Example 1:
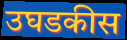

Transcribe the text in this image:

उघडकीस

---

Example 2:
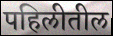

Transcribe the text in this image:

पहिलीतील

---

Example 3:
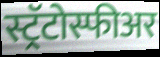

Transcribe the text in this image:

स्ट्रॅटोस्फीअर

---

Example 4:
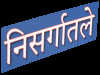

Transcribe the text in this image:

निसर्गातले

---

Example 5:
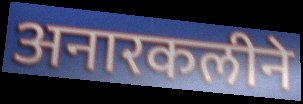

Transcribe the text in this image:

अनारकलीने